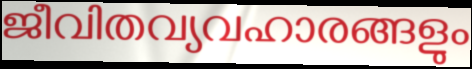
ജീവിതവ്യവഹാരങ്ങളും